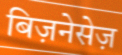
बिज़नेसेज़